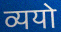
व्ययो